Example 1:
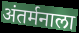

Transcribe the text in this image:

अंतर्मनाला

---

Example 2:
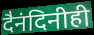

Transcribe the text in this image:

दैनंदिनीही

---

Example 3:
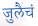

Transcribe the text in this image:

जुलैचं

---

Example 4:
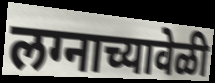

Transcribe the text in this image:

लग्नाच्यावेळी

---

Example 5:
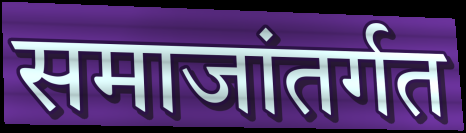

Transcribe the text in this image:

समाजांतर्गत